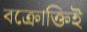
বক্রোক্তিই